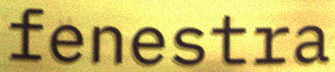
fenestra